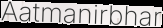
Aatmanirbhar